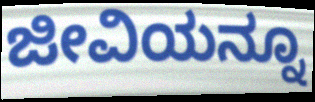
ಜೀವಿಯನ್ನೂ